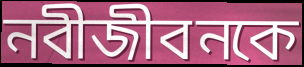
নবীজীবনকে